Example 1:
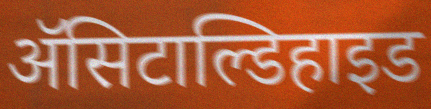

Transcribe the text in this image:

ॲसिटाल्डिहाइड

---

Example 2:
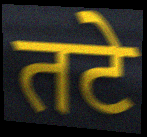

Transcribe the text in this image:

तटे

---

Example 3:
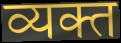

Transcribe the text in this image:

व्यक्‍त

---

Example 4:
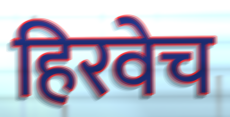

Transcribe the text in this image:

हिरवेच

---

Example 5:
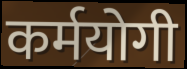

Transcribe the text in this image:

कर्मयोगी